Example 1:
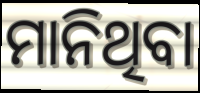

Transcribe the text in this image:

ମାନିଥିବା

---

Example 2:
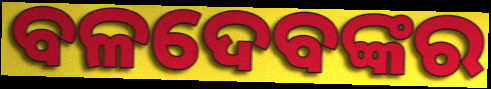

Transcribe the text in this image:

ବଳଦେବଙ୍କର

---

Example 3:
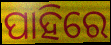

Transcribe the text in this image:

ପାହିରେ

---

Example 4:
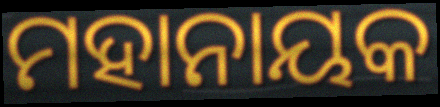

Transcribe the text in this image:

ମହାନାୟକ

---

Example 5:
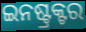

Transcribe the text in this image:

ଇନଷ୍ଟ୍ରକ୍ଟର